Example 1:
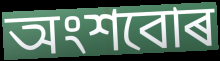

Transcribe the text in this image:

অংশবোৰ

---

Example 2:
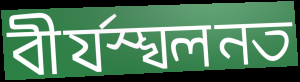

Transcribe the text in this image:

বীৰ্যস্খলনত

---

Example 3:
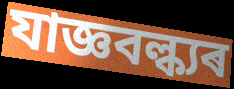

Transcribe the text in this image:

যাজ্ঞবল্ক্যৰ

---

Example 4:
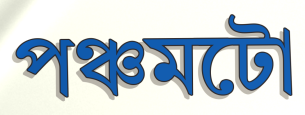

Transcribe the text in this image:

পঞ্চমটো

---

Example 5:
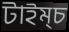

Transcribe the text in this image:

টাইম্‌চ